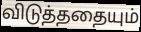
விடுத்ததையும்